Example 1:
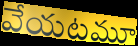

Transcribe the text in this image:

వేయటమూ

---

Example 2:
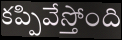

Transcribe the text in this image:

కప్పివేస్తోంది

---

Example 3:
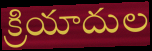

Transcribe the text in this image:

క్రియాదుల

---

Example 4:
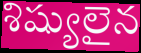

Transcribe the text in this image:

శిష్యులైన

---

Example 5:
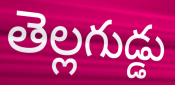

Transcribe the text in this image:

తెల్లగుడ్డు